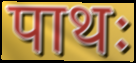
पाथः